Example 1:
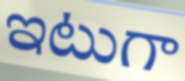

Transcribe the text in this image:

ఇటుగా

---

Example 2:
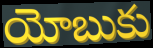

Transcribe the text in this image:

యోబుకు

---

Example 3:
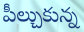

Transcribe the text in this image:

పీల్చుకున్న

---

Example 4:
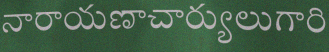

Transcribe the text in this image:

నారాయణాచార్యులుగారి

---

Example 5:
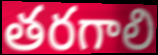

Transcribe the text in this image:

తరగాలి